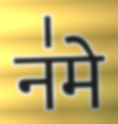
न॑मे